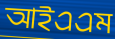
আইএএম